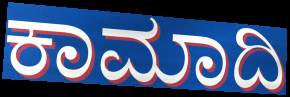
ಕಾಮಾದಿ